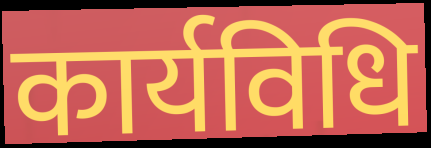
कार्यविधि